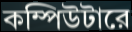
কম্পিউটারে